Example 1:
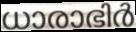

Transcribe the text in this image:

ധാരാഭിർ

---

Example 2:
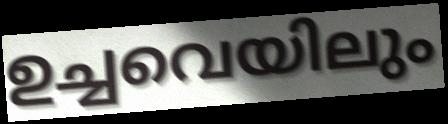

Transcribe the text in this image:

ഉച്ചവെയിലും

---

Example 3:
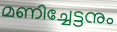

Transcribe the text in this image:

മണിച്ചേട്ടനും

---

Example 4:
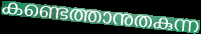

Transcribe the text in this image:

കണ്ടെത്താനുതകുന്ന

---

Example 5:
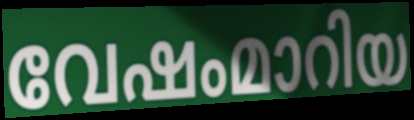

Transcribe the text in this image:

വേഷംമാറിയ